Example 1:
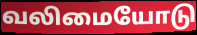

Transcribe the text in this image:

வலிமையோடு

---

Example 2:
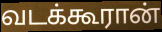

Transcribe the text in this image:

வடக்கூரான்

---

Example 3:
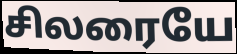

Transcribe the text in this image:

சிலரையே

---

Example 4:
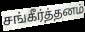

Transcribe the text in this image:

சங்கீர்த்தனம்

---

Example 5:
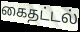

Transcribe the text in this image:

கைதட்டல்